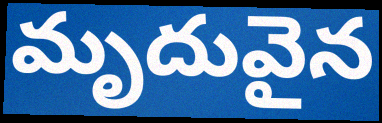
మృదువైన